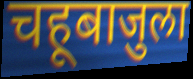
चहूबाजुला